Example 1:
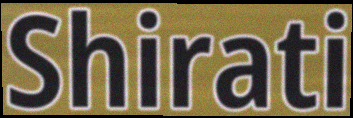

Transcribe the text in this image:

Shirati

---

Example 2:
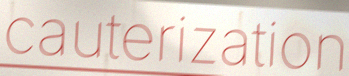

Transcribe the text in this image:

cauterization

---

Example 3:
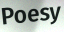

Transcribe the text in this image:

Poesy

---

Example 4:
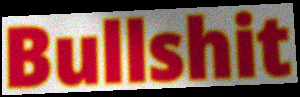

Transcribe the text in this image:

Bullshit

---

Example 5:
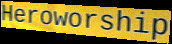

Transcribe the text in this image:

Heroworship